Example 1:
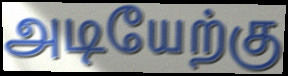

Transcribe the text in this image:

அடியேற்கு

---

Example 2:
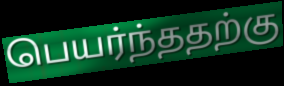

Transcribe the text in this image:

பெயர்ந்ததற்கு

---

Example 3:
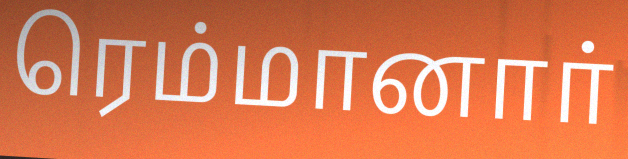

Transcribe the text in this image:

ரெம்மானார்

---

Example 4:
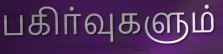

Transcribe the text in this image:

பகிர்வுகளும்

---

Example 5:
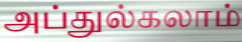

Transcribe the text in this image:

அப்துல்கலாம்